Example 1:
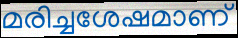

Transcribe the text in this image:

മരിച്ചശേഷമാണ്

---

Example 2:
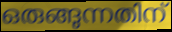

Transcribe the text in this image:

ഒരുങ്ങുന്നതിന്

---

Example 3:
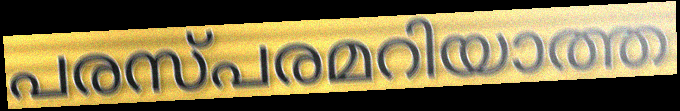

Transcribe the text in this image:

പരസ്പരമറിയാത്ത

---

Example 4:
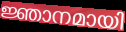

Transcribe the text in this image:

ജ്ഞാനമായി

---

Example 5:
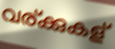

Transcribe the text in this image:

വര്ക്കുകള്